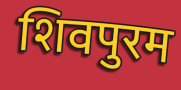
शिवपुरम